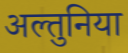
अल्तुनिया